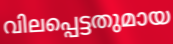
വിലപ്പെട്ടതുമായ